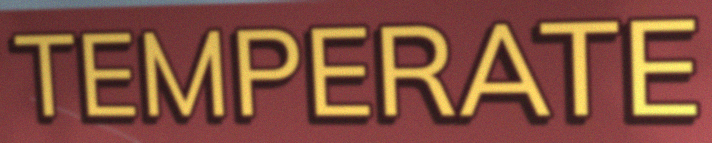
TEMPERATE